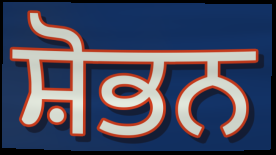
ਸ਼ੋਭਨ